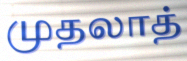
முதலாத்